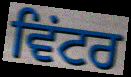
ਵਿਂਟਰ